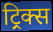
ट्रिक्स